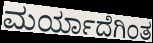
ಮರ್ಯಾದೆಗಿಂತ